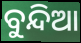
ବୁନ୍ଦିଆ